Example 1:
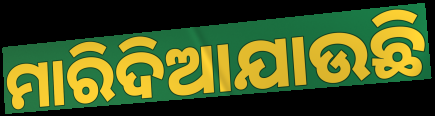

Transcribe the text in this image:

ମାରିଦିଆଯାଉଛି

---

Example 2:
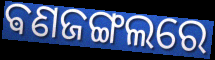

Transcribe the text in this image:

ଵଣଜଙ୍ଗଲରେ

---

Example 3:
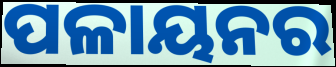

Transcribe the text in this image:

ପଳାୟନର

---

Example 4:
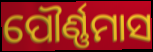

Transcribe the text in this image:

ପୌର୍ଣ୍ଣମାସ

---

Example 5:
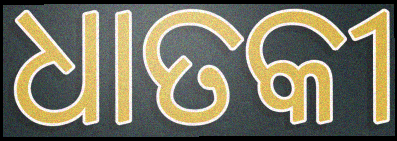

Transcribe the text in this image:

ଧାତକୀ